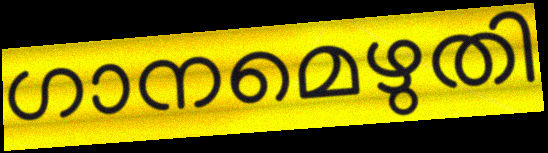
ഗാനമെഴുതി